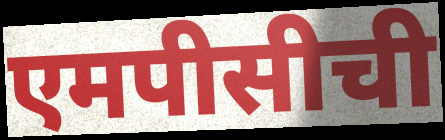
एमपीसीची